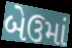
બેઉમાં